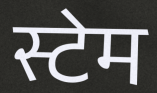
स्टेम